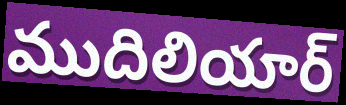
ముదిలియార్